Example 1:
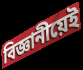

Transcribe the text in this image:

বিজ্ঞানীয়েই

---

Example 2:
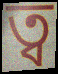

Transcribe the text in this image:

ত্ব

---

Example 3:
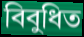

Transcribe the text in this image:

বিবুধিত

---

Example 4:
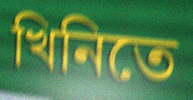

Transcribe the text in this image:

খিনিতে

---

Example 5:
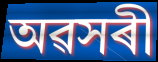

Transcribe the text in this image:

অৱসৰী